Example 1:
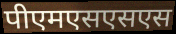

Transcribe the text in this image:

पीएमएसएसएस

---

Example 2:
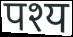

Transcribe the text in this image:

पश्य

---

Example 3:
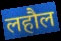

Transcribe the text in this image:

लहौल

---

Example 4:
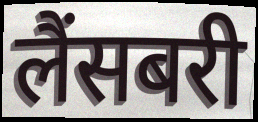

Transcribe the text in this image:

लैंसबरी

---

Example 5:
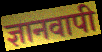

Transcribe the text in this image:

ज्ञानवापी